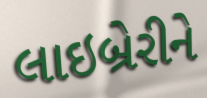
લાઇબ્રેરીને